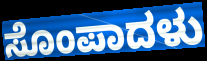
ಸೊಂಪಾದಳು